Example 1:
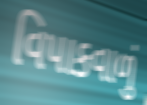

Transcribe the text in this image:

વિપાકવાળું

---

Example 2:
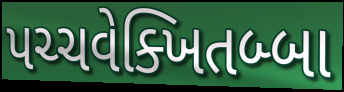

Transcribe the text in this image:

પચ્ચવેક્ખિતબ્બા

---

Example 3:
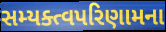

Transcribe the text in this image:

સમ્યક્ત્વપરિણામના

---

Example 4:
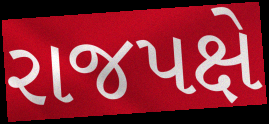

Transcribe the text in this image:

રાજપક્ષે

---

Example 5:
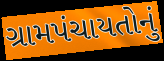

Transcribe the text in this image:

ગ્રામપંચાયતોનું